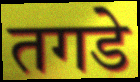
तगडे